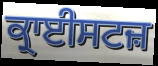
ਕ੍ਰਾਈਸਟਜ਼